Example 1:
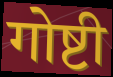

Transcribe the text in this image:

गोष्टी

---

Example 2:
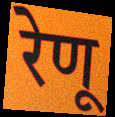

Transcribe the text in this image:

रेणू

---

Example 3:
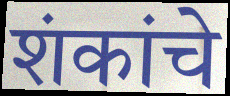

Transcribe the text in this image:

शंकांचे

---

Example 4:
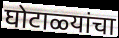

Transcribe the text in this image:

घोटाळ्यांचा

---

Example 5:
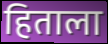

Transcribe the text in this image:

हिताला